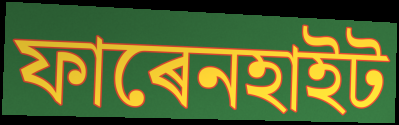
ফাৰেনহাইট